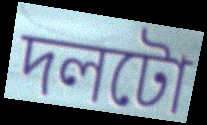
দলটো